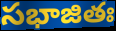
సభాజితః